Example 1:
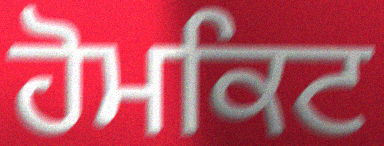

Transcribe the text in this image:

ਹੋਮਕਿਟ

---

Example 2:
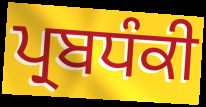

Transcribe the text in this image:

ਪ੍ਰਬਧੰਕੀ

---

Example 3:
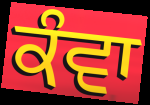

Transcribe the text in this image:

ਕੰਵਾ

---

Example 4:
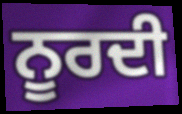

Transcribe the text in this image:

ਨੂਰਦੀ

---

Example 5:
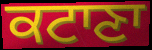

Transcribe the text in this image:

ਕਟਾਣਾ